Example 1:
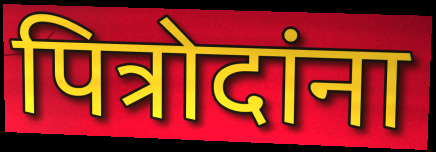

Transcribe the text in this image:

पित्रोदांना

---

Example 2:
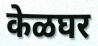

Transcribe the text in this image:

केळघर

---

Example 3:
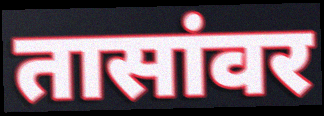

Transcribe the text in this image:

तासांवर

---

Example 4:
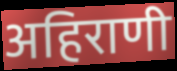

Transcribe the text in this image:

अहिराणी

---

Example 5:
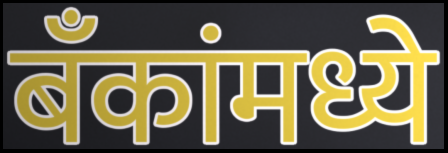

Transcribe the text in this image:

बँकांमध्ये